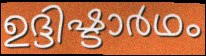
ഉദ്ദിഷ്ടാർഥം